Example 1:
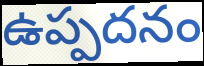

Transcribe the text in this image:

ఉప్పదనం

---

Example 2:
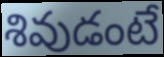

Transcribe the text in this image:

శివుడంటే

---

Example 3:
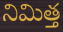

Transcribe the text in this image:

నిమిత్త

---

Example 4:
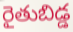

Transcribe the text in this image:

రైతుబిడ్డ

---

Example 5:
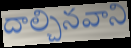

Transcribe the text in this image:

దాల్చినవాని